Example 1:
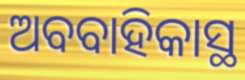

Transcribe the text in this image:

ଅବବାହିକାସ୍ଥ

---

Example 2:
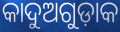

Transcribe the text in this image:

କାଦୁଅଗୁଡ଼ାକ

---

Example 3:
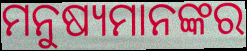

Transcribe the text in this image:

ମନୁଷ୍ୟମାନଙ୍କର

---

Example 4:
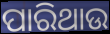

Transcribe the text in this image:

ପାରିଥାଉ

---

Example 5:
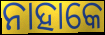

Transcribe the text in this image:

ନାହାକେ